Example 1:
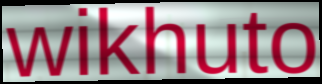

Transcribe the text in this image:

wikhuto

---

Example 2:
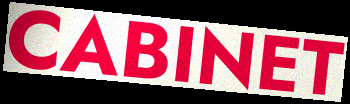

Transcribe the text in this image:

CABINET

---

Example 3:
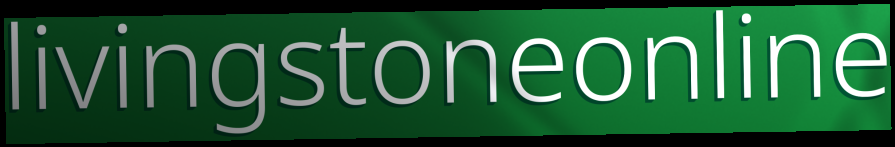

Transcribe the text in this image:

livingstoneonline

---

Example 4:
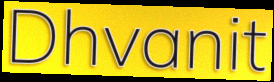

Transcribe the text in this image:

Dhvanit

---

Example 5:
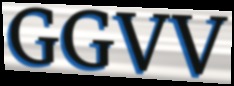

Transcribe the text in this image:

GGVV